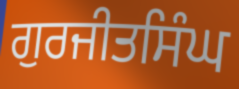
ਗੁਰਜੀਤਸਿੰਘ